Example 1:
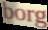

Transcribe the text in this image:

borg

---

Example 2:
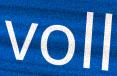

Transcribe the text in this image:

voll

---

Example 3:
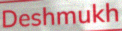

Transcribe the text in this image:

Deshmukh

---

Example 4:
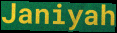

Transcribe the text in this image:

Janiyah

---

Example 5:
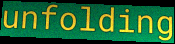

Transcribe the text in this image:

unfolding